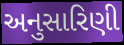
અનુસારિણી